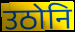
उठोनि